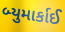
બ્યુમાર્કાઈ